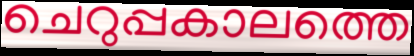
ചെറുപ്പകാലത്തെ